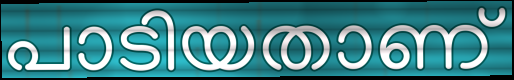
പാടിയതാണ്